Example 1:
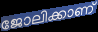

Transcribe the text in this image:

ജോലിക്കാണ്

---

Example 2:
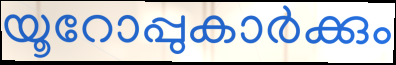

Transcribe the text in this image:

യൂറോപ്പുകാർക്കും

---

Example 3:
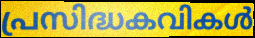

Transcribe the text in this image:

പ്രസിദ്ധകവികൾ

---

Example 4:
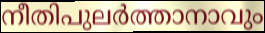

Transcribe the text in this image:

നീതിപുലർത്താനാവും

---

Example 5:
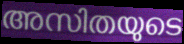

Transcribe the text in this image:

അസിതയുടെ